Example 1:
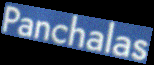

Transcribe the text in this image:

Panchalas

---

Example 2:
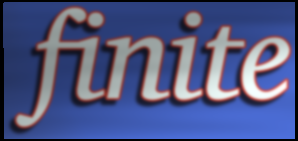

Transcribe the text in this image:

finite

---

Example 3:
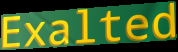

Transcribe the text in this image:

Exalted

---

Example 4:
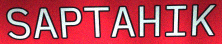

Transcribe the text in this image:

SAPTAHIK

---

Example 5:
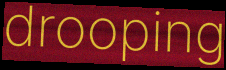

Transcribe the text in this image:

drooping